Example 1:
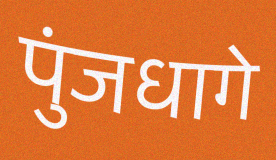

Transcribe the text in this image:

पुंजधागे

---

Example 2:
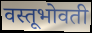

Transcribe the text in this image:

वस्तूभोवती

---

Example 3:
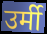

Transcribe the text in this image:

उर्मी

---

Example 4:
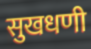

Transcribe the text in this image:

सुखधणी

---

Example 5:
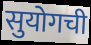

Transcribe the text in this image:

सुयोगची